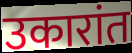
उकारांत